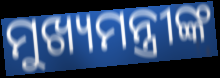
ମୁଖ୍ୟମନ୍ତ୍ରୀଙ୍କ